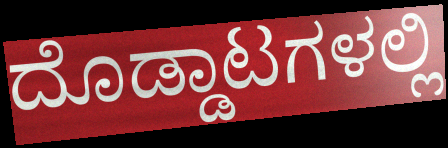
ದೊಡ್ಡಾಟಗಳಲ್ಲಿ